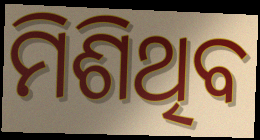
ମିଶିଥିବ